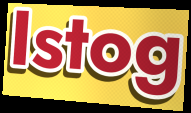
Istog